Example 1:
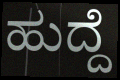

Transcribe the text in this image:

ಹುದ್ದೆ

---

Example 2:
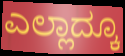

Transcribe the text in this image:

ಎಲ್ಲಾದ್ಕೂ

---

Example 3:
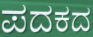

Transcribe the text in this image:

ಪದಕದ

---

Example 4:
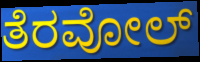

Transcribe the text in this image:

ತೆರವೋಲ್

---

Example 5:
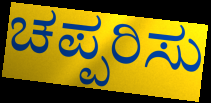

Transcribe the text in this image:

ಚಪ್ಪರಿಸು